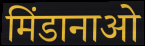
मिंडानाओ